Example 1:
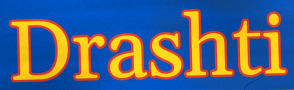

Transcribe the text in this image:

Drashti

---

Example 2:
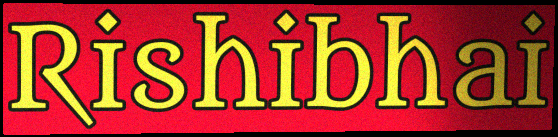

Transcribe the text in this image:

Rishibhai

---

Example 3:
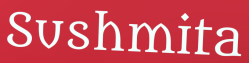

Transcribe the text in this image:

Sushmita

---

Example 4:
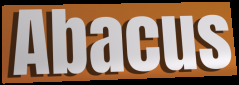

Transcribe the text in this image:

Abacus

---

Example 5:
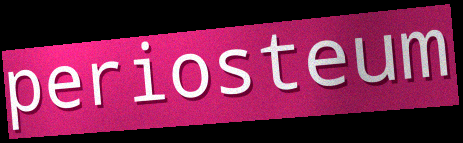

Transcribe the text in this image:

periosteum